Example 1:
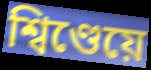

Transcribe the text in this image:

শ্বিণ্ডেয়ে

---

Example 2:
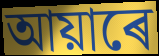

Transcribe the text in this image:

আয়াৰে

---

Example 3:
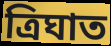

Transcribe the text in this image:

ত্ৰিঘাত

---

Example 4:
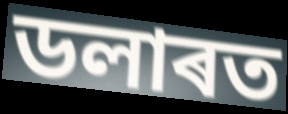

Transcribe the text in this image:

ডলাৰত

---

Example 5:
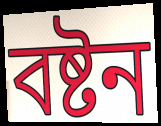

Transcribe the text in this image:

বষ্টন